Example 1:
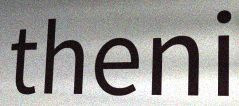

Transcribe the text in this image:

theni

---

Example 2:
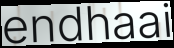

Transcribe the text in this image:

endhaai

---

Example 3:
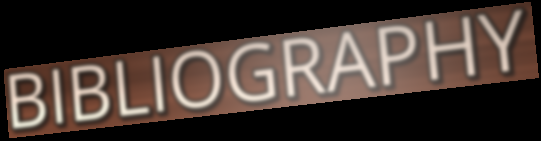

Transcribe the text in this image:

BIBLIOGRAPHY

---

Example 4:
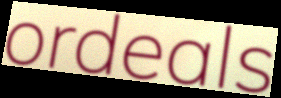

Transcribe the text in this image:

ordeals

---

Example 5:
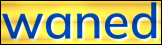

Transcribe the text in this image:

waned